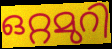
ഒറ്റമുറി